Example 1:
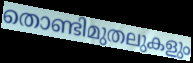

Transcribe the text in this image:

തൊണ്ടിമുതലുകളും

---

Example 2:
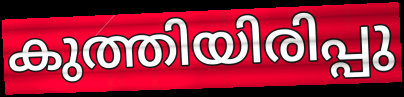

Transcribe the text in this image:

കുത്തിയിരിപ്പു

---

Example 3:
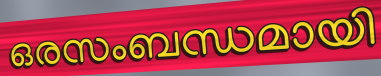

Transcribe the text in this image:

ഒരസംബന്ധമായി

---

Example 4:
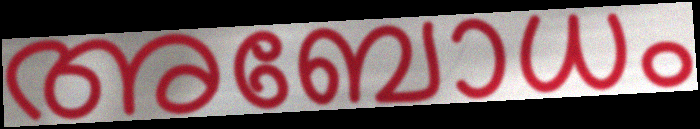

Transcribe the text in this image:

അബോധം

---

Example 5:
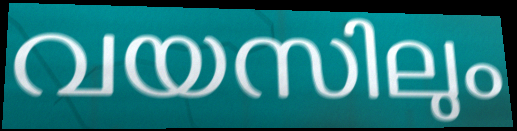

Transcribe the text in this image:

വയസിലും